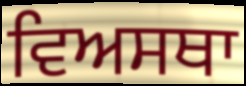
ਵਿਅਸਥਾ